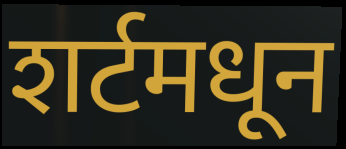
शर्टमधून